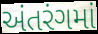
અંતરંગમાં